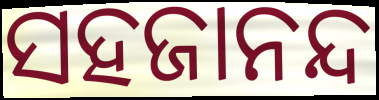
ସହଜାନନ୍ଦ